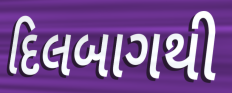
દિલબાગથી